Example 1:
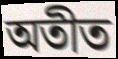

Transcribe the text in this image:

অতীত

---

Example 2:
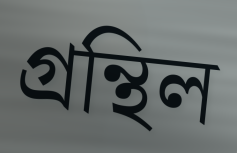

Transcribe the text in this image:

গ্ৰন্থিল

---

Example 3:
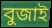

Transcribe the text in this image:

বুজাই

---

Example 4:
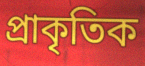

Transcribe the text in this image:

প্ৰাকৃতিক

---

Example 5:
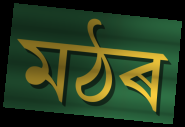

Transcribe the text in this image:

মঠৰ